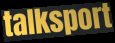
talksport